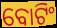
ବୋଟିଂ